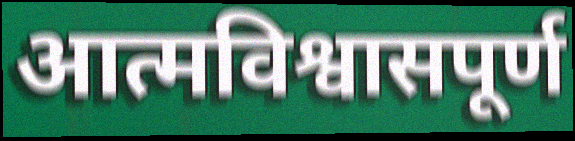
आत्मविश्वासपूर्ण